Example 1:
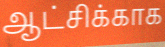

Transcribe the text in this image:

ஆட்சிக்காக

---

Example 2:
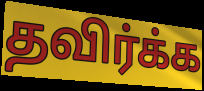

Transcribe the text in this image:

தவிர்க்க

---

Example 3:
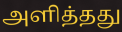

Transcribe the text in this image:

அளித்தது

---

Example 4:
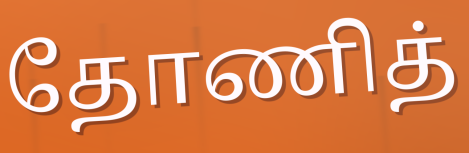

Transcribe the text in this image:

தோணித்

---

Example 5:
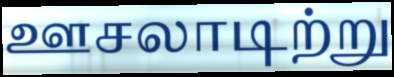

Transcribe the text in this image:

ஊசலாடிற்று